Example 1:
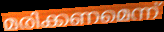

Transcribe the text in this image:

മരിക്കണമെന്ന്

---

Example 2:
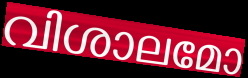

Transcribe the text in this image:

വിശാലമോ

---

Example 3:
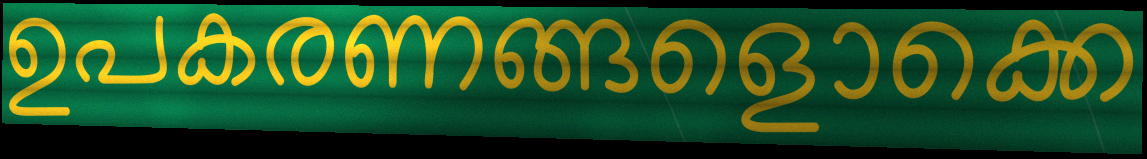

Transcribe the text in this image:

ഉപകരണങ്ങളൊക്കെ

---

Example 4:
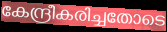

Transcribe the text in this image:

കേന്ദ്രീകരിച്ചതോടെ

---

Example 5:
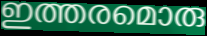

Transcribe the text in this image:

ഇത്തരമൊരു